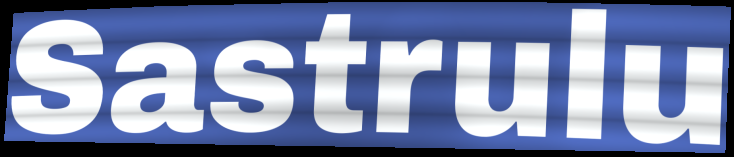
Sastrulu